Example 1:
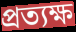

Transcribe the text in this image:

প্ৰত্যক্ষ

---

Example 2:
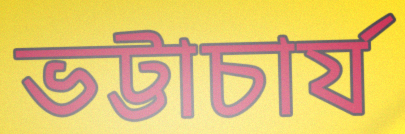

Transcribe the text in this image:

ভট্টাচাৰ্য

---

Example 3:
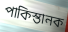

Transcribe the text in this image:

পাকিস্তানক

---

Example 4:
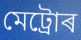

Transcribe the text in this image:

মেট্ৰোৰ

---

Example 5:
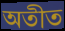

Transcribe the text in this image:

অতীত